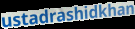
ustadrashidkhan